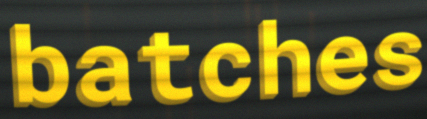
batches